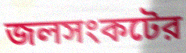
জলসংকটের